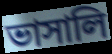
ভাসালি